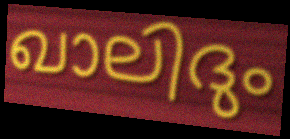
ഖാലിദും